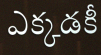
ఎక్కడకీ